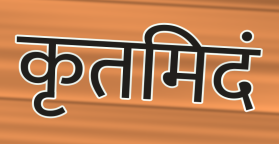
कृतमिदं